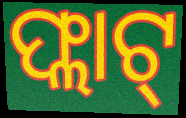
ଫ୍ଲାଟ୍